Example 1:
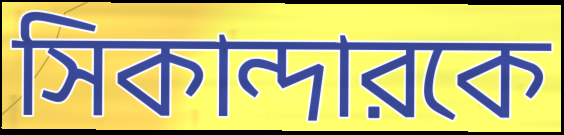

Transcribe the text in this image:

সিকান্দারকে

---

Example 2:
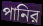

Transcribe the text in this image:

পানির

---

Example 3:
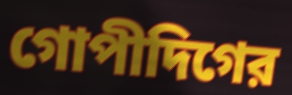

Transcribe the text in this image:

গোপীদিগের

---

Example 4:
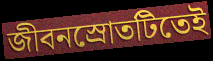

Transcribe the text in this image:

জীবনস্রোতটিতেই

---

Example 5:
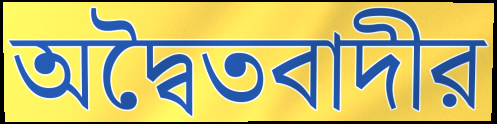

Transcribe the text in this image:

অদ্বৈতবাদীর